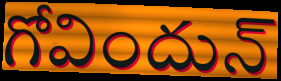
గోవిందున్